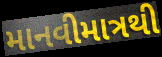
માનવીમાત્રથી